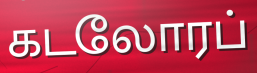
கடலோரப்